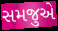
સમજુએ